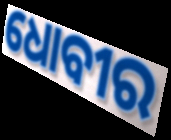
ଧୋବୀର